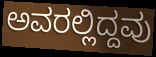
ಅವರಲ್ಲಿದ್ದವು